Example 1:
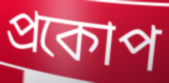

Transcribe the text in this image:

প্রকোপ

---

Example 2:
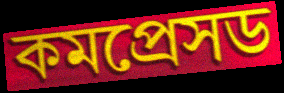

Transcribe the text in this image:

কমপ্রেসড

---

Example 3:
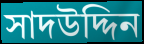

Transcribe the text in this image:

সাদউদ্দিন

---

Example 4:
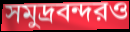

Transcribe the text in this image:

সমুদ্রবন্দরও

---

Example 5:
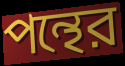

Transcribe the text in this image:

পন্থের